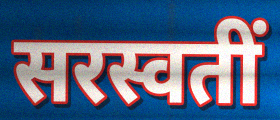
सरस्वतीं